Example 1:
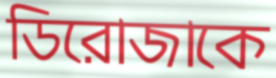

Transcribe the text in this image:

ডিরোজাকে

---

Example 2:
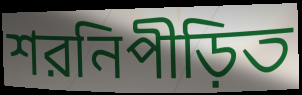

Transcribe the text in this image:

শরনিপীড়িত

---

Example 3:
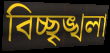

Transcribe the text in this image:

বিচ্ছৃঙ্খলা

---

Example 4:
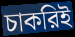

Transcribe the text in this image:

চাকরিই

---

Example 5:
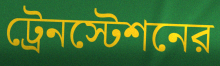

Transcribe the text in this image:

ট্রেনস্টেশনের